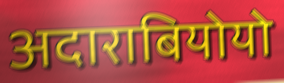
अदाराबियोयो